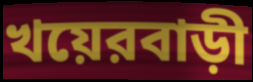
খয়েরবাড়ী